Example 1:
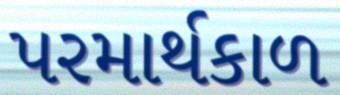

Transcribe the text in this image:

પરમાર્થકાળ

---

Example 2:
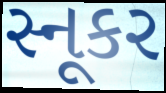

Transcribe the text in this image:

સ્નૂકર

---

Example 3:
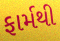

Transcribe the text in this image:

ફાર્મથી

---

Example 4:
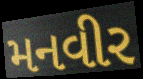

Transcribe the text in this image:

મનવીર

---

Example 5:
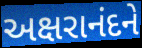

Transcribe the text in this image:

અક્ષરાનંદને